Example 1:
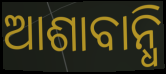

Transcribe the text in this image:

ଆଶାବାନ୍ଧି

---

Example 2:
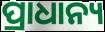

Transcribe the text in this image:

ପ୍ରାଧାନ୍ୟ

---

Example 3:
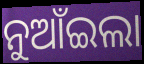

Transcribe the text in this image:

ନୁଆଁଇଲା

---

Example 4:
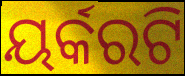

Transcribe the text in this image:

ୟର୍କରଟି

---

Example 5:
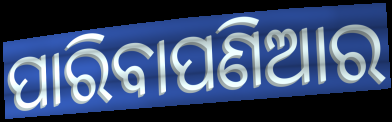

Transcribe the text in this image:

ପାରିବାପଣିଆର